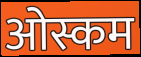
ओस्कम